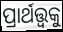
ପ୍ରାର୍ଥତ୍ତ୍ୱକୁ